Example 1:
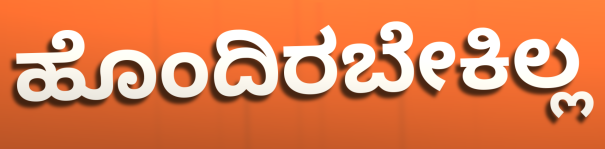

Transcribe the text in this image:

ಹೊಂದಿರಬೇಕಿಲ್ಲ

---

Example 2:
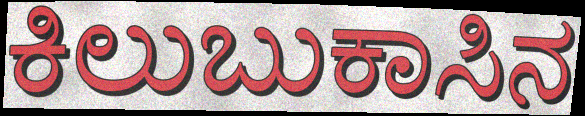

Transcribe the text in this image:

ಕಿಲುಬುಕಾಸಿನ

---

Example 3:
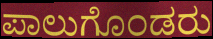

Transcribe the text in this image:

ಪಾಲುಗೊಂಡರು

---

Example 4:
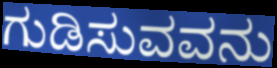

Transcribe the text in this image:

ಗುಡಿಸುವವನು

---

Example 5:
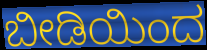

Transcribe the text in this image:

ಬೀಡಿಯಿಂದ